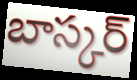
బాస్కర్